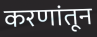
करणांतून